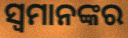
ସ୍ୱମାନଙ୍କର